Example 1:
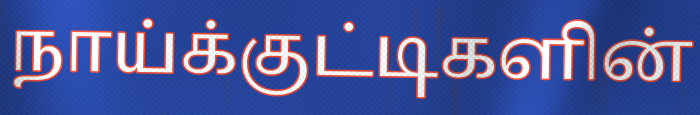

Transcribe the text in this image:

நாய்க்குட்டிகளின்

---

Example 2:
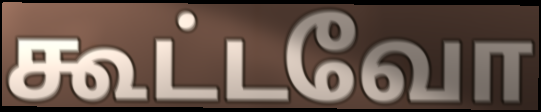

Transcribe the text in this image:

கூட்டவோ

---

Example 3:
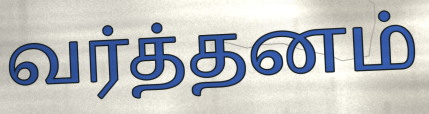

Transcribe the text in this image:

வர்த்தனம்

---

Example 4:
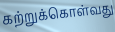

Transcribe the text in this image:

கற்றுக்கொள்வது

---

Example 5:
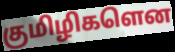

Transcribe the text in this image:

குமிழிகளென